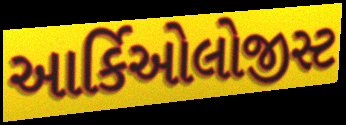
આર્કિઓલોજીસ્ટ